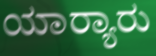
ಯಾರ್‍ಯಾರು